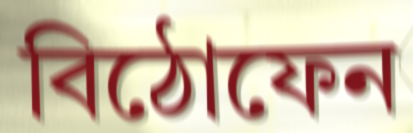
বিঠোফেন